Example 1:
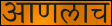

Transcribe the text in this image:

आणलाच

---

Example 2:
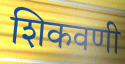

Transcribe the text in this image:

शिकवणी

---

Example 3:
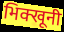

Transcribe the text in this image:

भिक्खूनी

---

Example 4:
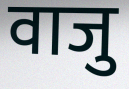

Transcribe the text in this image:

वाजु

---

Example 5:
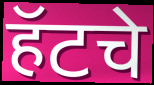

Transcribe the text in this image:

हॅटचे